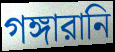
গঙ্গারানি